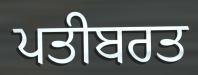
ਪਤੀਬਰਤ